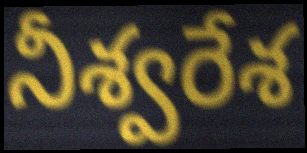
నీశ్వరేశ